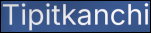
Tipitkanchi